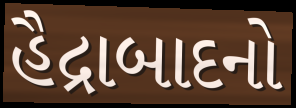
હૈદ્રાબાદનો